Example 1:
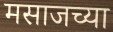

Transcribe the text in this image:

मसाजच्या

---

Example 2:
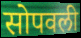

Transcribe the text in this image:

सोपवली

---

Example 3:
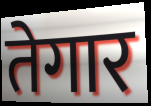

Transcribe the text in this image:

तेगार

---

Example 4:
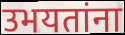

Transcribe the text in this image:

उभयतांना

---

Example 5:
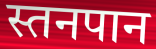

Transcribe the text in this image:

स्तनपान